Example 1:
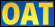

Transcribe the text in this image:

OAT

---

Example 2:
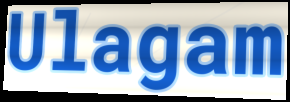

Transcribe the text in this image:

Ulagam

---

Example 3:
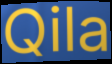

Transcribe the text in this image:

Qila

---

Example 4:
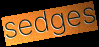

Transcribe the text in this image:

sedges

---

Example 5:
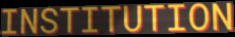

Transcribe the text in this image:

INSTITUTION